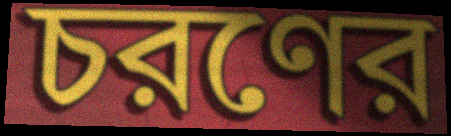
চরণের